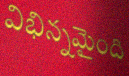
విభిన్నమైంది